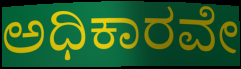
ಅಧಿಕಾರವೇ